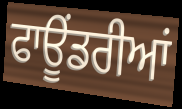
ਫਾਊਂਡਰੀਆਂ